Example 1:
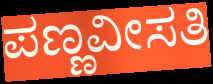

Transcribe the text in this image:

ಪಣ್ಣವೀಸತಿ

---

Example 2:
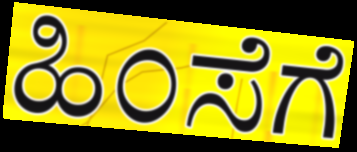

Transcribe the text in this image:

ಹಿಂಸೆಗೆ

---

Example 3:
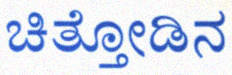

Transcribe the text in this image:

ಚಿತ್ತೋಡಿನ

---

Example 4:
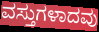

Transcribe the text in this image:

ವಸ್ತುಗಳಾದವು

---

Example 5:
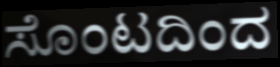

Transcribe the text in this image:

ಸೊಂಟದಿಂದ